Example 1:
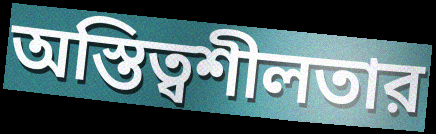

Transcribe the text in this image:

অস্তিত্বশীলতার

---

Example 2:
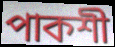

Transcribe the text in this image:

পাকশী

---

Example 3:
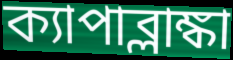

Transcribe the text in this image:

ক্যাপাব্লাঙ্কা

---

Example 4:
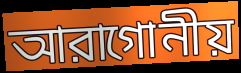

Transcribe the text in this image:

আরাগোনীয়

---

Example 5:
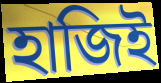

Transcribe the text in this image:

হাজিই